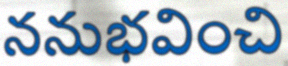
ననుభవించి